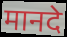
मानदे